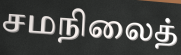
சமநிலைத்